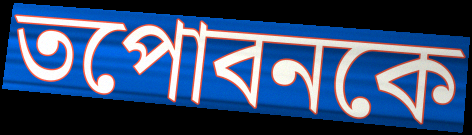
তপোবনকে